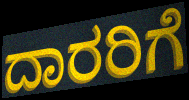
ದಾರರಿಗೆ